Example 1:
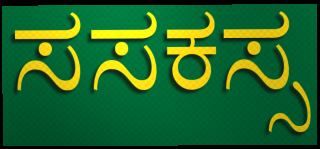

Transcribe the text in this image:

ಸಸಕಸ್ಸ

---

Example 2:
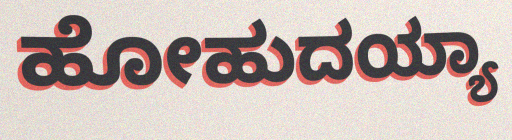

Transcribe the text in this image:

ಹೋಹುದಯ್ಯಾ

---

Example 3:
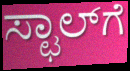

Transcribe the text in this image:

ಸ್ಟಾಲ್‌ಗೆ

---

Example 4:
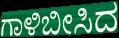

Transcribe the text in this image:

ಗಾಳಿಬೀಸಿದ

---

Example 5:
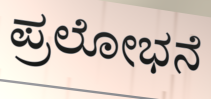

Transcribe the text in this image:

ಪ್ರಲೋಭನೆ